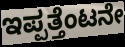
ಇಪ್ಪತ್ತೆಂಟನೇ